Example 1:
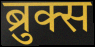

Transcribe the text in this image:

ब्रुक्‍स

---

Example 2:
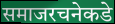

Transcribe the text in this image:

समाजरचनेकडे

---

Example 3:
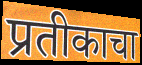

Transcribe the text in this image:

प्रतीकाचा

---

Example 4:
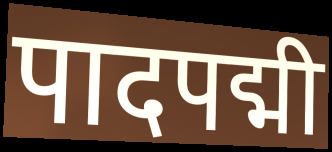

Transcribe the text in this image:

पादपद्मी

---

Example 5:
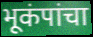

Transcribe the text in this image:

भूकंपांचा